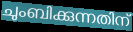
ചുംബിക്കുന്നതിന്